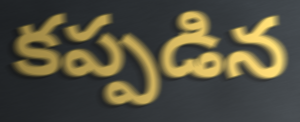
కప్పడిన